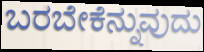
ಬರಬೇಕೆನ್ನುವುದು